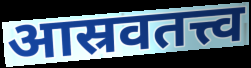
आस्रवतत्त्व